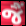
જૈં